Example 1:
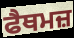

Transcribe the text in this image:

ਫੈਥਮਜ਼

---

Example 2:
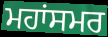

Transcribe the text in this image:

ਮਹਾਂਸਮਰ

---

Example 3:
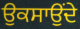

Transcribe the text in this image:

ਉਕਸਾਉਂਦੇ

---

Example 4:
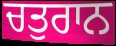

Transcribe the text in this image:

ਚਤੁਰਾਨ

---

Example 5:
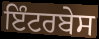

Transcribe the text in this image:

ਇੰਟਰਬੇਸ